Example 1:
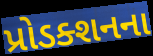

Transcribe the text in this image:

પ્રોડક્શનના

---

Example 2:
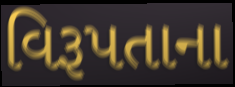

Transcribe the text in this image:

વિરૂપતાના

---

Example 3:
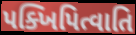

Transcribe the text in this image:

પક્ખિપિત્વાતિ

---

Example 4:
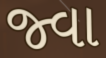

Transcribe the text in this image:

જ્વા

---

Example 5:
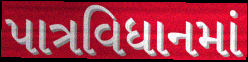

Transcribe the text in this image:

પાત્રવિધાનમાં